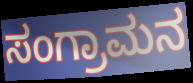
ಸಂಗ್ರಾಮನ